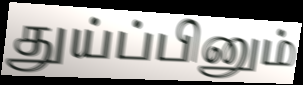
துய்ப்பினும்